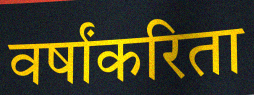
वर्षांकरिता